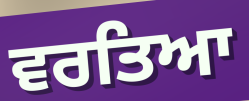
ਵਰਤਿਆ